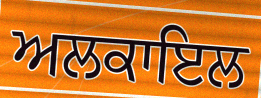
ਅਲਕਾਇਲ